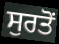
ਸੁਰਤੋਂ